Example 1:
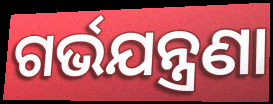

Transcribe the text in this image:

ଗର୍ଭଯନ୍ତ୍ରଣା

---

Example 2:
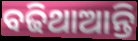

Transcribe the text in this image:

ବଢିଥାଆନ୍ତି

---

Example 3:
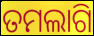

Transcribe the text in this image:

ତମଲାଗି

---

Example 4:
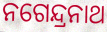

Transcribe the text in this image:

ନଗେନ୍ଦ୍ରନାଥ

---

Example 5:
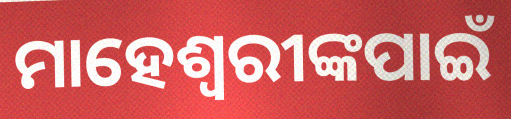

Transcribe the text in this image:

ମାହେଶ୍ୱରୀଙ୍କପାଇଁ